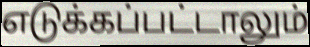
எடுக்கப்பட்டாலும்